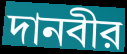
দানবীর